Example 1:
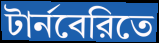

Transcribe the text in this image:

টার্নবেরিতে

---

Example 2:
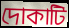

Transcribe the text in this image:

দোকাটি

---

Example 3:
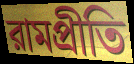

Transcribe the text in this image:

রামপ্রীতি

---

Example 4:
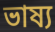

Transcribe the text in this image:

ভাষ্য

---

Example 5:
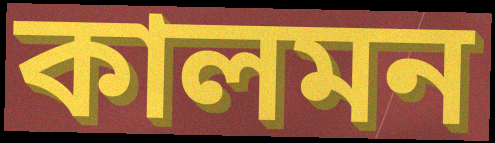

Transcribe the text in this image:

কালমন